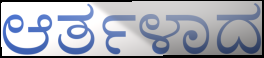
ಆರ್ತಳಾದ